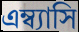
এম্ব্যাসি